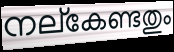
നല്കേണ്ടതും